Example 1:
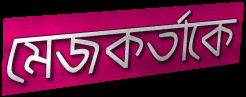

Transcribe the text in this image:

মেজকর্তাকে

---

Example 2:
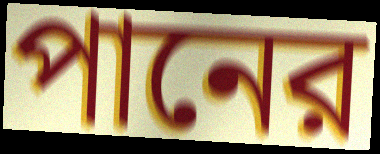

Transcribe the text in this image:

পানের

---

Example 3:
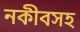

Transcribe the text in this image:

নকীবসহ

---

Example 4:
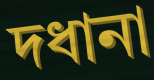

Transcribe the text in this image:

দধানা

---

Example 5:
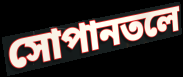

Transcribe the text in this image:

সোপানতলে